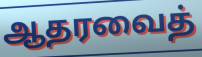
ஆதரவைத்